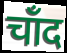
चाँद